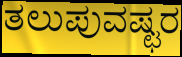
ತಲುಪುವಷ್ಟರ